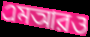
এমআরও